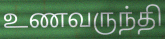
உணவருந்தி